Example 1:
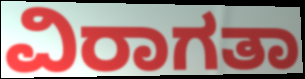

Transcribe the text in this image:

ವಿರಾಗತಾ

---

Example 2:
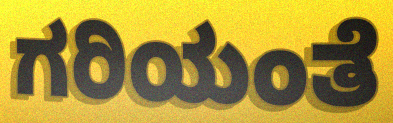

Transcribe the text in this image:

ಗರಿಯಂತೆ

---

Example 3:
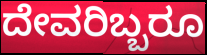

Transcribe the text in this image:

ದೇವರಿಬ್ಬರೂ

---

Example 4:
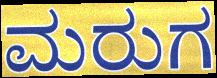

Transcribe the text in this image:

ಮರುಗ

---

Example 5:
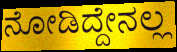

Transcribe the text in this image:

ನೋಡಿದ್ದೇನಲ್ಲ